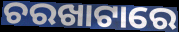
ଚରଖାଟାରେ